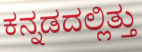
ಕನ್ನಡದಲ್ಲಿತ್ತು